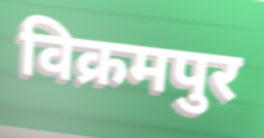
विक्रमपुर